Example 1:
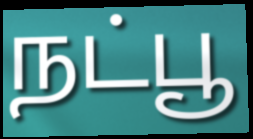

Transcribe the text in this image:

நட்பூ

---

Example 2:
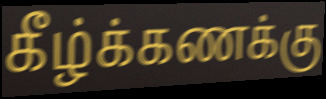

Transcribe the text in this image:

கீழ்க்கணக்கு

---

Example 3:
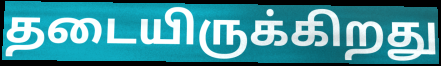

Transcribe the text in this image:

தடையிருக்கிறது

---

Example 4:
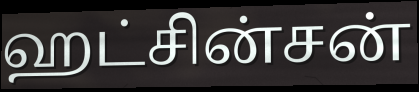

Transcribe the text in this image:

ஹட்சின்சன்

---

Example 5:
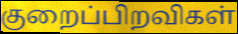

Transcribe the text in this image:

குறைப்பிறவிகள்